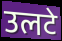
उलटे